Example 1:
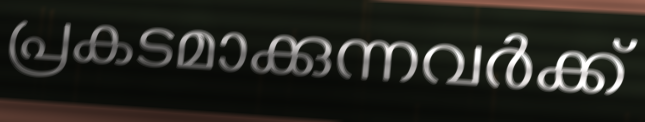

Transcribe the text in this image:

പ്രകടമാക്കുന്നവർക്ക്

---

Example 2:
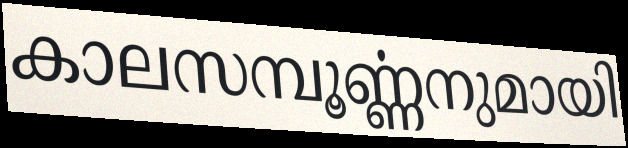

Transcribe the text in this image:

കാലസമ്പൂൎണ്ണനുമായി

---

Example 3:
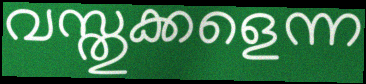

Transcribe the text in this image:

വസ്തുക്കളെന്ന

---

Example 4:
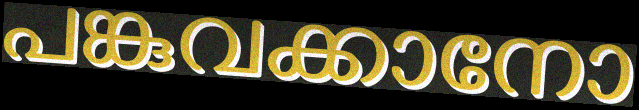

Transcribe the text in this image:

പങ്കുവക്കാനോ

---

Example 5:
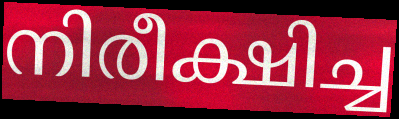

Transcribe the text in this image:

നിരീക്ഷിച്ച